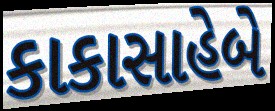
કાકાસાહેબે